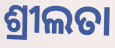
ଶ୍ରୀଲତା